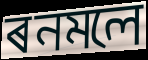
ৰনমলে